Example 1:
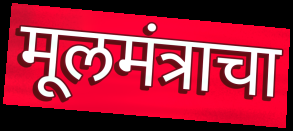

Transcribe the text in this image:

मूलमंत्राचा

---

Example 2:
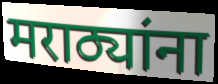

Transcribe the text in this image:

मराठ्यांना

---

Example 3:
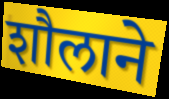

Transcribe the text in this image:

शौलाने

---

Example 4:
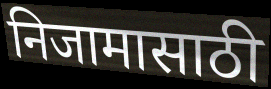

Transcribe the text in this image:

निजामासाठी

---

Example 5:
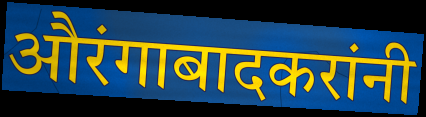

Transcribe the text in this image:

औरंगाबादकरांनी